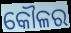
କୌଳର